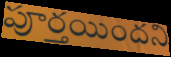
పూర్తయిందని